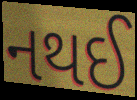
નથઈ